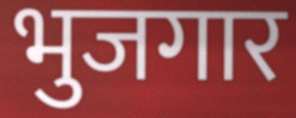
भुजगार